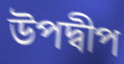
উপদ্বীপ